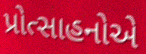
પ્રોત્સાહનોએ